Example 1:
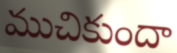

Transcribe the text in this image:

ముచికుందా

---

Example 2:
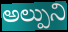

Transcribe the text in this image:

అల్పుని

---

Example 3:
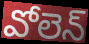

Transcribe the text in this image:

వోలెన్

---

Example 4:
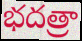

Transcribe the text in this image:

భదత్రా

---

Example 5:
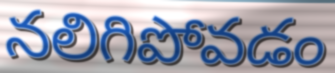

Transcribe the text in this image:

నలిగిపోవడం